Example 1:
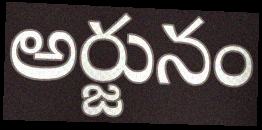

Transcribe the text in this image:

అర్జునం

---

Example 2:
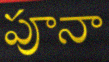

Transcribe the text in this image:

పూనా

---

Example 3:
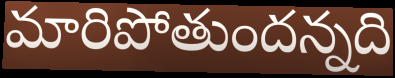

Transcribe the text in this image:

మారిపోతుందన్నది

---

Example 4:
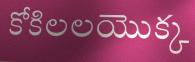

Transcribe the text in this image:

కోకిలలయొక్క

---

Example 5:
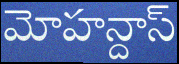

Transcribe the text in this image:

మోహన్దాస్